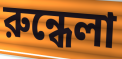
রুন্ধেলা